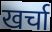
खर्चा